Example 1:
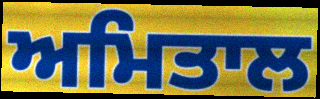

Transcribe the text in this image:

ਅਮਿਤਾਲ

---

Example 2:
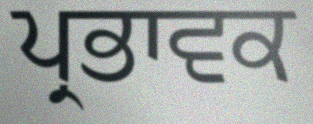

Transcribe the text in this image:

ਪ੍ਰਭਾਵਕ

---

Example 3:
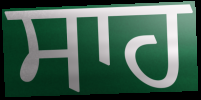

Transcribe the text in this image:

ਸਾਹ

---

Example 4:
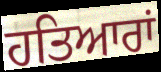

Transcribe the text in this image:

ਹਤਿਆਰਾਂ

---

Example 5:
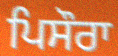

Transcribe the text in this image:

ਪਿਸੌਰਾ